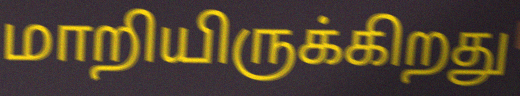
மாறியிருக்கிறது